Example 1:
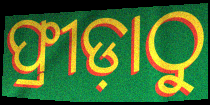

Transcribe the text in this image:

ଫ୍ରୀଡ଼ାଠୁ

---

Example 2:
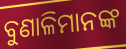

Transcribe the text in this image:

ବୁଣାଳିମାନଙ୍କ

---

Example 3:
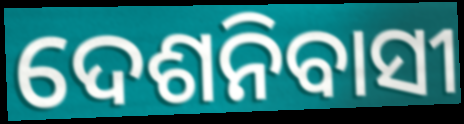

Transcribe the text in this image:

ଦେଶନିବାସୀ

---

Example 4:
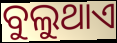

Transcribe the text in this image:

ବୁଲୁଥାଏ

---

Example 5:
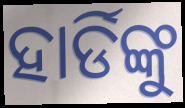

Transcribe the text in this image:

ହାର୍ଡିଙ୍କୁ